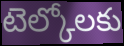
టెల్కోలకు